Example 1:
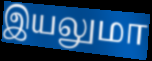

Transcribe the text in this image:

இயலுமா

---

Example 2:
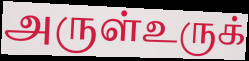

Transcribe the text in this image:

அருள்உருக்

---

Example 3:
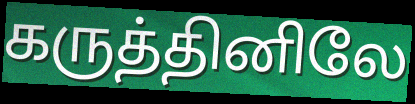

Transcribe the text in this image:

கருத்தினிலே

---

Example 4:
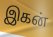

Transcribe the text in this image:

இகன்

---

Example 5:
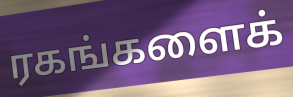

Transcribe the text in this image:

ரகங்களைக்